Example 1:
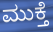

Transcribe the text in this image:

ಮುಕ್ತೆ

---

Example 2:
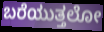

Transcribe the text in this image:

ಬರೆಯುತ್ತಲೋ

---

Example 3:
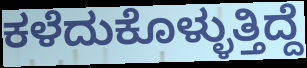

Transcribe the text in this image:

ಕಳೆದುಕೊಳ್ಳುತ್ತಿದ್ದೆ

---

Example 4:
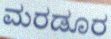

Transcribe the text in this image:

ಮರಡೂರ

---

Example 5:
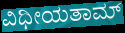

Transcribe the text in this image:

ವಿಧೀಯತಾಮ್